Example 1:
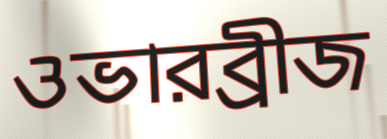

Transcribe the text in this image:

ওভারব্রীজ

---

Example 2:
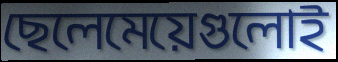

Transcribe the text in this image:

ছেলেমেয়েগুলোই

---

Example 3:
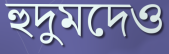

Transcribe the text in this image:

হুদুমদেও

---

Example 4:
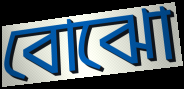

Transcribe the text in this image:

বোঝো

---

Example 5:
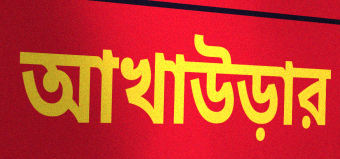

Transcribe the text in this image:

আখাউড়ার